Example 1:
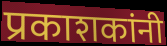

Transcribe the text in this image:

प्रकाशकांनी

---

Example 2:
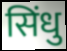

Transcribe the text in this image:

सिंधु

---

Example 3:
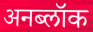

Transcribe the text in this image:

अनब्लॉक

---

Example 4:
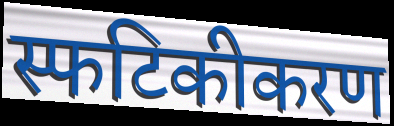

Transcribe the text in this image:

स्फटिकीकरण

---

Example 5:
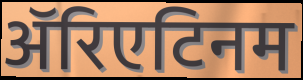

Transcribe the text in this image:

ॲरिएटिनम